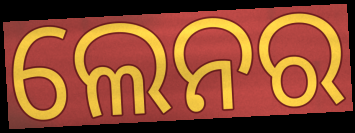
ଲେନର